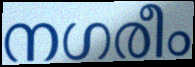
നഗരീം